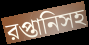
রপ্তানিসহ